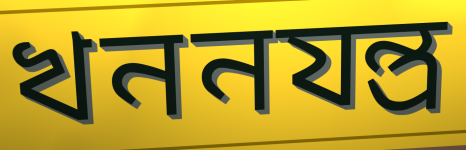
খননযন্ত্র